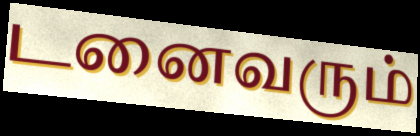
டனைவரும்